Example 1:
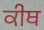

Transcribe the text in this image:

ਕੀਥ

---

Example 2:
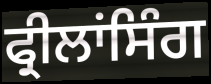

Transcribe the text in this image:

ਫ੍ਰੀਲਾਂਸਿੰਗ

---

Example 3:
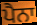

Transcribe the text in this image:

ਪੈਨਾ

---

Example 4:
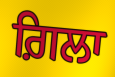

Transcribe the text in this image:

ਗ਼ਿਲਾ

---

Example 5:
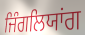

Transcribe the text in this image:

ਜਿੰਗਲਿਯਾਂਗ